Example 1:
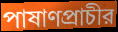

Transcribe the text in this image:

পাষাণপ্রাচীর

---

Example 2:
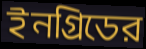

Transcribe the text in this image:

ইনগ্রিডের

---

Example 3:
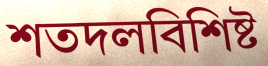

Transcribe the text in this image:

শতদলবিশিষ্ট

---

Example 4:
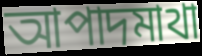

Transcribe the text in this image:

আপাদমাথা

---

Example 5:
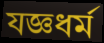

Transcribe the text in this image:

যজ্ঞধর্ম